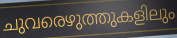
ചുവരെഴുത്തുകളിലും